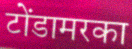
टोंडामरका